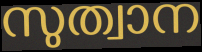
സുത്വാന